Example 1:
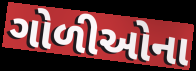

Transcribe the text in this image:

ગોળીઓના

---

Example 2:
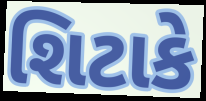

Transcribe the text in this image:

શિટાકે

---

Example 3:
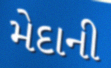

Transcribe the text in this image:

મેદાની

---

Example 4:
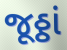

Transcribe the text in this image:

જૂઠ્ઠાં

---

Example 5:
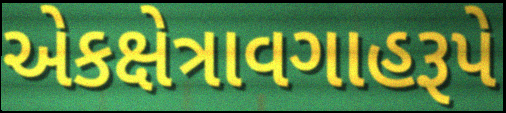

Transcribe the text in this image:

એકક્ષેત્રાવગાહરૂપે